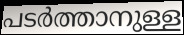
പടർത്താനുള്ള